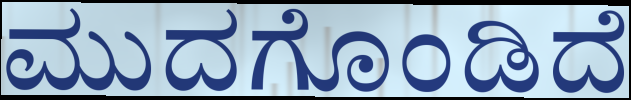
ಮುದಗೊಂಡಿದೆ